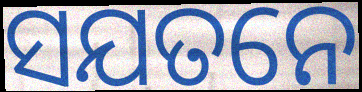
ସଯତନେ